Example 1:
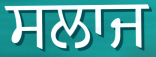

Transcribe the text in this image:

ਸਲਾਜ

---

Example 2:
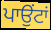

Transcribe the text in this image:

ਪਾਉਂਟਾਂ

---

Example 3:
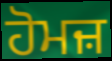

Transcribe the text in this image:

ਹੋਮਜ਼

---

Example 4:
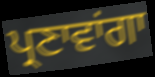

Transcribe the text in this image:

ਪ੍ਰਣਾਵਾਂਗਾ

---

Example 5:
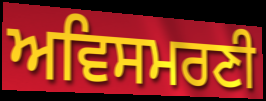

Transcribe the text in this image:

ਅਵਿਸਮਰਣੀ